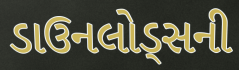
ડાઉનલોડ્સની